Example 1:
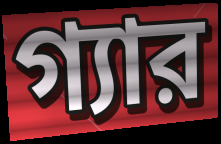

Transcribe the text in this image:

গ্যার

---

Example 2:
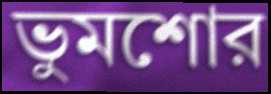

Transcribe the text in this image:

ভুমশোর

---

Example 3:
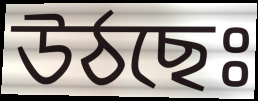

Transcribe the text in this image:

উঠছেঃ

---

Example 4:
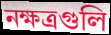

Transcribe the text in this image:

নক্ষত্রগুলি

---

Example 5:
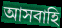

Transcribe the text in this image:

আসবাহি